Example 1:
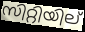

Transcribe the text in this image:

സിറ്റിയില്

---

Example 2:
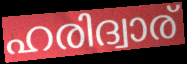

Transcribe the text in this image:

ഹരിദ്വാര്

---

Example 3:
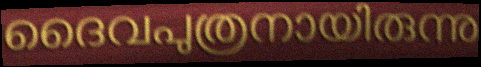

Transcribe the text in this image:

ദൈവപുത്രനായിരുന്നു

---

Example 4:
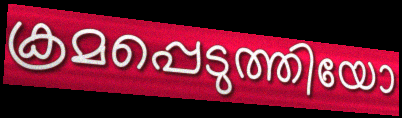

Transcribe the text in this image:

ക്രമപ്പെടുത്തിയോ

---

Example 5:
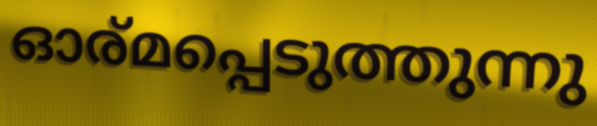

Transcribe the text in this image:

ഓര്മപ്പെടുത്തുന്നു